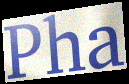
Pha